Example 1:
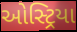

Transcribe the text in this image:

ઓસ્ટ્રિયા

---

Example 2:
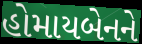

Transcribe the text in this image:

હોમાયબેનને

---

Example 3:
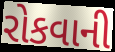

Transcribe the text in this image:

રોકવાની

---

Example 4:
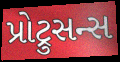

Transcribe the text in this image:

પ્રોટ્રુસન્સ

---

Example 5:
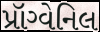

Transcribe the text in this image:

પ્રૉગ્વેનિલ